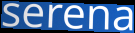
serena